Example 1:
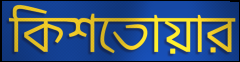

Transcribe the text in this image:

কিশতোয়ার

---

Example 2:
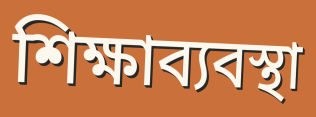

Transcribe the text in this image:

শিক্ষাব্যবস্থা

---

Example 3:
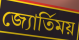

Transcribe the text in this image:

জ্যোর্তিময়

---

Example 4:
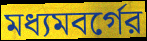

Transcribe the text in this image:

মধ্যমবর্গের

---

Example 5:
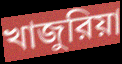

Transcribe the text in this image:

খাজুরিয়া